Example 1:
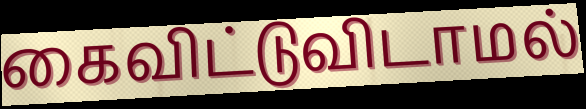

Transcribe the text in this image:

கைவிட்டுவிடாமல்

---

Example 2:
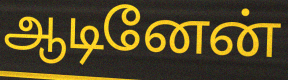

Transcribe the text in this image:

ஆடினேன்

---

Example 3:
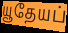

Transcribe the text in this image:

யூதேயப்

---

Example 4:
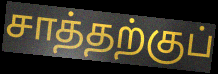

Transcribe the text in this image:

சாத்தற்குப்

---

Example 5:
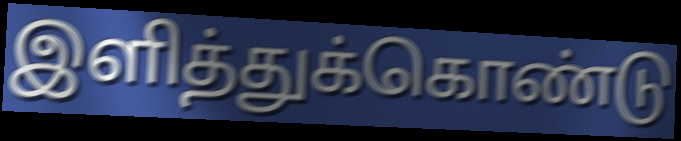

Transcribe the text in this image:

இளித்துக்கொண்டு